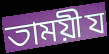
তাময়ীয